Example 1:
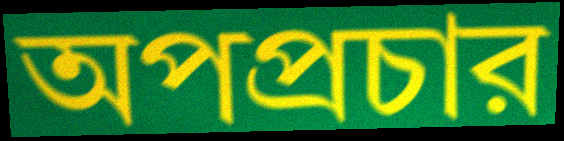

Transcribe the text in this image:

অপপ্রচার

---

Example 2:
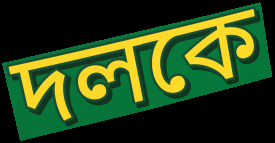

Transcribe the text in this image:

দলকে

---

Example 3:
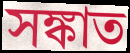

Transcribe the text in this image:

সঙ্কাত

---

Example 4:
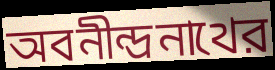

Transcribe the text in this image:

অবনীন্দ্রনাথের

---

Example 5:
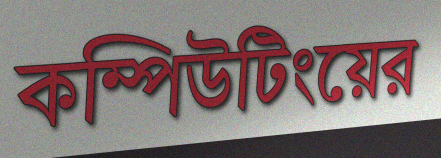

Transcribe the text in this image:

কম্পিউটিংয়ের